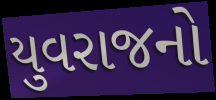
યુવરાજનો